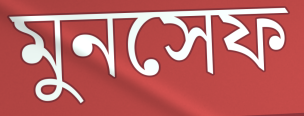
মুনসেফ